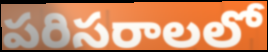
పరిసరాలలో